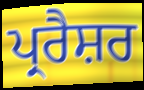
ਪ੍ਰਰੈਸ਼ਰ